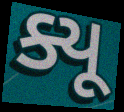
ક્યૂ